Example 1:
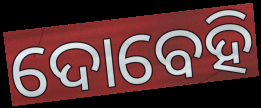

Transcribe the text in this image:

ଦୋବେହି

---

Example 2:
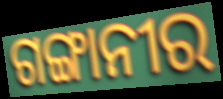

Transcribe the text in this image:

ଗଙ୍ଗାନୀର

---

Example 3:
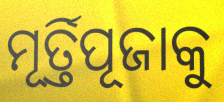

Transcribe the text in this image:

ମୂର୍ତ୍ତିପୂଜାକୁ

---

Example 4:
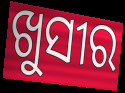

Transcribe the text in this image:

ଖୁସୀର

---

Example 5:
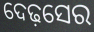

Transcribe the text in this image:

ଦେଢ଼ସେର